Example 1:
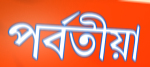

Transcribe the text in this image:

পৰ্বতীয়া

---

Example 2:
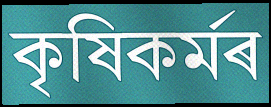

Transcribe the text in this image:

কৃষিকৰ্মৰ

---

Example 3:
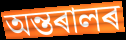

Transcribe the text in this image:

অন্তৰালৰ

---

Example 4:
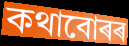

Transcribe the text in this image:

কথাবোৰৰ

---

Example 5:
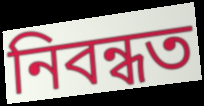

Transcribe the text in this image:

নিবন্ধত